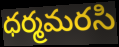
ధర్మమరసి